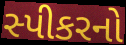
સ્પીકરનો